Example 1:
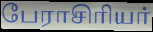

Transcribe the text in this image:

பேராசிரியர்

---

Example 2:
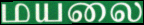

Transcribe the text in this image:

மயலை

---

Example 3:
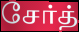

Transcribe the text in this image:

சேர்த்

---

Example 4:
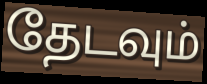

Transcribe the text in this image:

தேடவும்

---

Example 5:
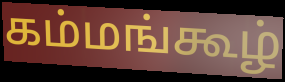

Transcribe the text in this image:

கம்மங்கூழ்